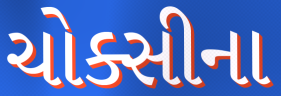
ચોક્સીના